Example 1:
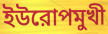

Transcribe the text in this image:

ইউরোপমুখী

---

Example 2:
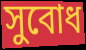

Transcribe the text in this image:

সুবোধ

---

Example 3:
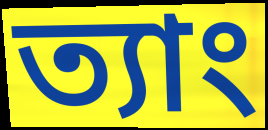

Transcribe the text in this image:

ত্যাং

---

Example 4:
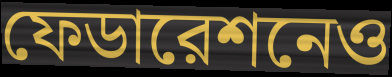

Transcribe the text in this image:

ফেডারেশনেও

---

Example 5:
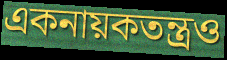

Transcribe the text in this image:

একনায়কতন্ত্রও